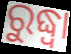
ରୁଦ୍ଧ୍ୱା